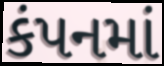
કંપનમાં